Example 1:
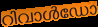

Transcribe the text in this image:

റിവാൾഡോ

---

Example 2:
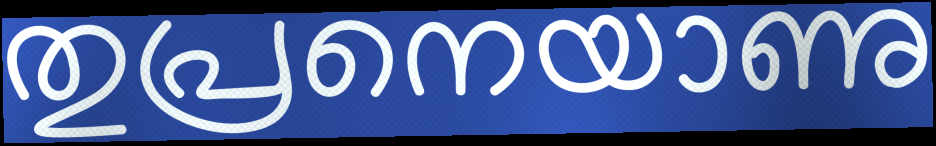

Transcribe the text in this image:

തുപ്രനെയാണു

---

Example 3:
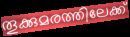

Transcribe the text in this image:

തൂക്കുമരത്തിലേക്ക്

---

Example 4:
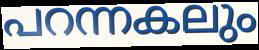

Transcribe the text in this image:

പറന്നകലും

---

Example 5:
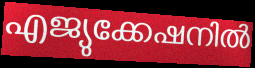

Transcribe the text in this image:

എജ്യുക്കേഷനിൽ